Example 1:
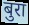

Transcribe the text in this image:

बुरा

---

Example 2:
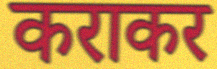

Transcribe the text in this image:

कराकर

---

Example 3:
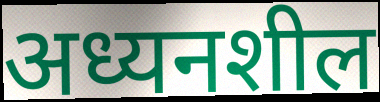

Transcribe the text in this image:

अध्यनशील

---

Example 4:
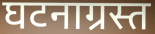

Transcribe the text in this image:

घटनाग्रस्त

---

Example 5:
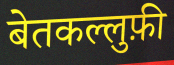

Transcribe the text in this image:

बेतकल्लुफ़ी